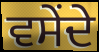
ਵਸੇਂਦੇ